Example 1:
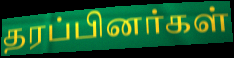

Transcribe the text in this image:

தரப்பினர்கள்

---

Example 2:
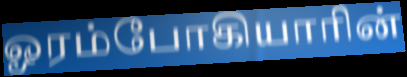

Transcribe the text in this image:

ஓரம்போகியாரின்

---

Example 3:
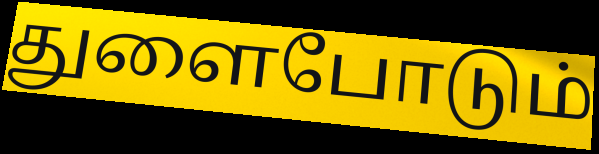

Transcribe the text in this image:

துளைபோடும்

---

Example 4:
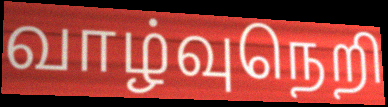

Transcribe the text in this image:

வாழ்வுநெறி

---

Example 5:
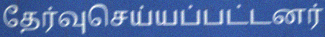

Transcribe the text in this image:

தேர்வுசெய்யப்பட்டனர்